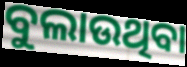
ବୁଲାଉଥିବା